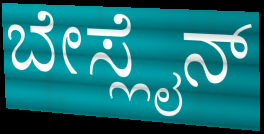
ಬೇಸ್ಲೈನ್